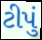
ટીપું